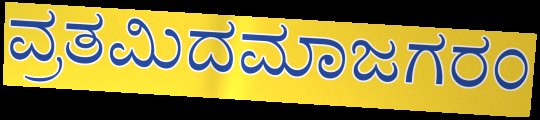
ವ್ರತಮಿದಮಾಜಗರಂ